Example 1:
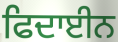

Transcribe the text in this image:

ਫਿਦਾਈਨ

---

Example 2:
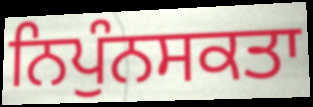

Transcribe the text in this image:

ਨਿਪੁੰਨਸਕਤਾ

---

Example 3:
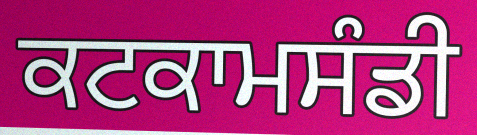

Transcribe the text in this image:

ਕਟਕਾਮਸੰਡੀ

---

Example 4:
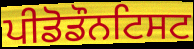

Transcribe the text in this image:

ਪੀਡੋਡੌਨਟਿਸਟ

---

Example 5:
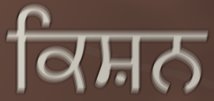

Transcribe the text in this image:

ਕਿਸ਼ਨ